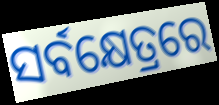
ସର୍ବକ୍ଷେତ୍ରରେ